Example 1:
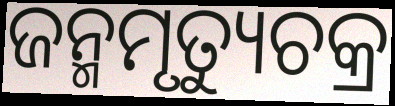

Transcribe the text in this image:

ଜନ୍ମମୃତ୍ୟୁଚକ୍ର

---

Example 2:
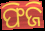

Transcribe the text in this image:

ଫିଜି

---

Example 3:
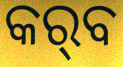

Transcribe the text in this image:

କର୍‌ବ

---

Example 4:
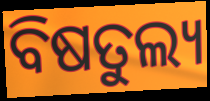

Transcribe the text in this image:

ବିଷତୁଲ୍ୟ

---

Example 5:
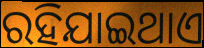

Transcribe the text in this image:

ରହିଯାଇଥାଏ